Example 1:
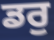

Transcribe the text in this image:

ਡਰੁ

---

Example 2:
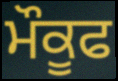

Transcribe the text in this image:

ਮੌਕੂਫ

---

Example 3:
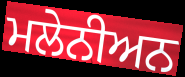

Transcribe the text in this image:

ਮਲੇਨੀਅਨ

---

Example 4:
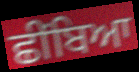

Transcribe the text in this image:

ਛੀਂਬਿਆ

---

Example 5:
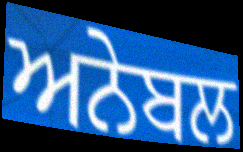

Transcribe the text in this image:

ਅਨੇਬਲ